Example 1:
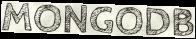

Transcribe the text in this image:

MONGODB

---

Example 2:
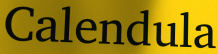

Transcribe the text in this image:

Calendula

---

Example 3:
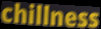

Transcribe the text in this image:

chillness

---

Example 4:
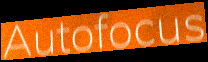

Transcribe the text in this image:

Autofocus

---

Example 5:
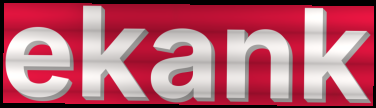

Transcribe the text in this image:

ekank